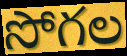
సోగల